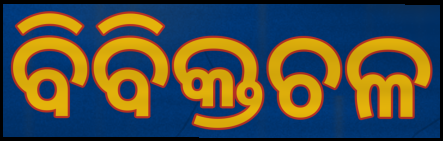
ବିବିକ୍ତଚଳ